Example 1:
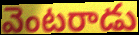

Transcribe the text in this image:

వెంటరాడు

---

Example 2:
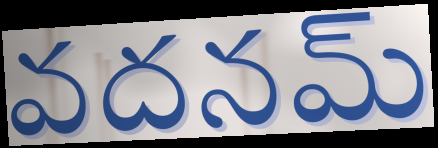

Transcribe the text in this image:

వదనమ్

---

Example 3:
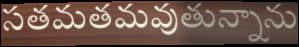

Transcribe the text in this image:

సతమతమవుతున్నాను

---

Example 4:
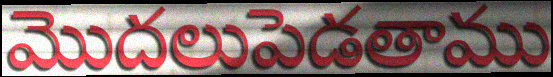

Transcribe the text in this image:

మొదలుపెడతాము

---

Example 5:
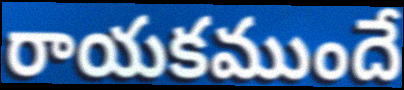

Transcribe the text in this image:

రాయకముందే